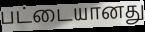
பட்டையானது